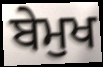
ਬੇਮੁਖ